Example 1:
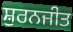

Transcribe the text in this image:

ਸ਼ੁਰਨਜੀਤ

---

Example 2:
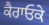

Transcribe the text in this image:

ਕੈਰਾਓਕੇ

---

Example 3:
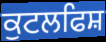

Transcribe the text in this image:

ਕੁਟਲਫਿਸ਼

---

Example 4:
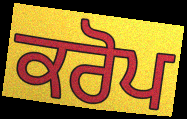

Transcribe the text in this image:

ਕਰੋਪ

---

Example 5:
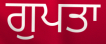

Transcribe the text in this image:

ਗੁਪਤਾ